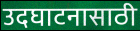
उदघाटनासाठी